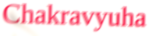
Chakravyuha